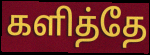
களித்தே